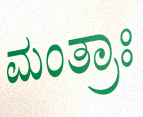
ಮಂತ್ರಾಃ